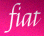
fiat